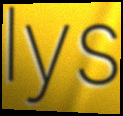
lys